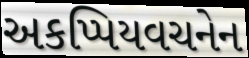
અકપ્પિયવચનેન